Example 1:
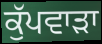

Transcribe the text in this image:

ਕੁੱਪਵਾੜਾ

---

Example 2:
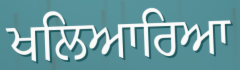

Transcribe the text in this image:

ਖਲਿਆਰਿਆ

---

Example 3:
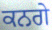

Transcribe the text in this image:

ਕਨਗੇ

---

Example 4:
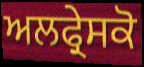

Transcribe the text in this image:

ਅਲਫ੍ਰੇਸਕੋ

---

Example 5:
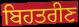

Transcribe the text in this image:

ਬਿਹਤਰੀਣ